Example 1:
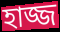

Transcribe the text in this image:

হাজ্জ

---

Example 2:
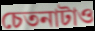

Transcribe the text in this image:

চেতনাটাও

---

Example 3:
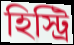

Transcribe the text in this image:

হিস্ট্রি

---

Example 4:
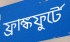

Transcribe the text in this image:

ফ্রাঙ্কফুর্টে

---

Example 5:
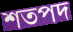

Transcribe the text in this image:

শতপদ